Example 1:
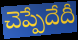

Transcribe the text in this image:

చెప్పేదేదీ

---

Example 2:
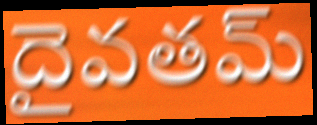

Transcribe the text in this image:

దైవతమ్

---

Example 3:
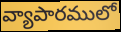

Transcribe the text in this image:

వ్యాపారములో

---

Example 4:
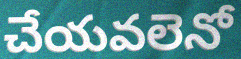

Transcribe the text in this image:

చేయవలెనో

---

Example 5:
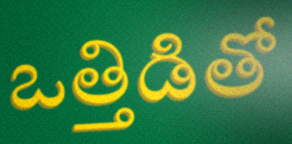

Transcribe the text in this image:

ఒత్తిడితో